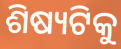
ଶିଷ୍ୟଟିକୁ